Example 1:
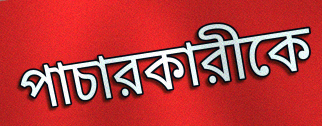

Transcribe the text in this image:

পাচারকারীকে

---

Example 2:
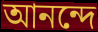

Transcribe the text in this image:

আনন্দে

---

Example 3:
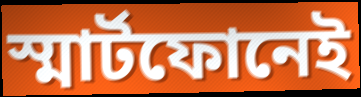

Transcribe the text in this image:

স্মার্টফোনেই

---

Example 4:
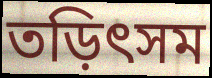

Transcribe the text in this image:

তড়িৎসম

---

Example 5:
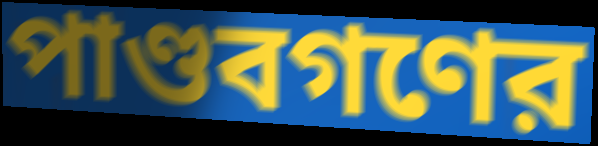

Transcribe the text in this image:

পাণ্ডবগণের